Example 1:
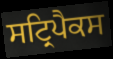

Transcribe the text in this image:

ਸਟ੍ਰਿਪੈਕਸ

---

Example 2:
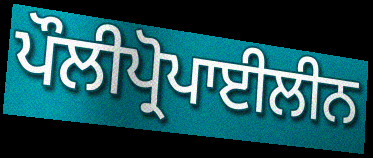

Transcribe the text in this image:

ਪੌਲੀਪ੍ਰੋਪਾਈਲੀਨ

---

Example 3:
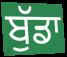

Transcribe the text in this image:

ਬੁੱਡਾ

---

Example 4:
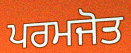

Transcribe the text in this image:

ਪਰਮਜੋਤ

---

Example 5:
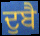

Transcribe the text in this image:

ਦੁਬੈ